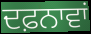
ਦਫ਼ਨਾਵਾਂ